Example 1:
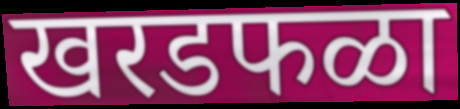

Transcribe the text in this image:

खरडफळा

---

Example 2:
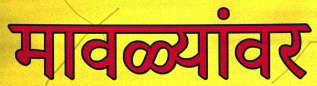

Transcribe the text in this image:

मावळ्यांवर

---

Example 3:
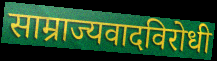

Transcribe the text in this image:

साम्राज्यवादविरोधी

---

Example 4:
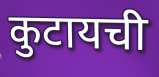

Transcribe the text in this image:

कुटायची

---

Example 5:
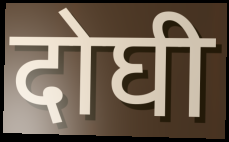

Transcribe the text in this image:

दोघी